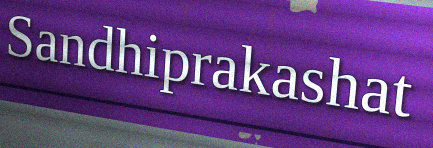
Sandhiprakashat